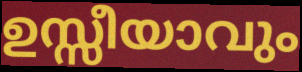
ഉസ്സീയാവും